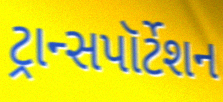
ટ્રાન્સપૉર્ટેશન